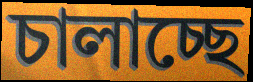
চালাচ্ছে